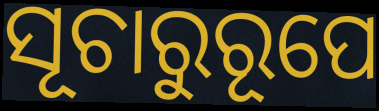
ସୂଚାରୁରୂପେ